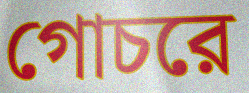
গোচরে